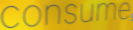
consume